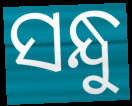
ସନ୍ଧୁ